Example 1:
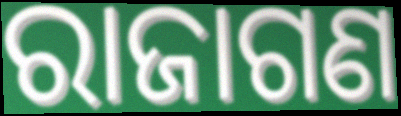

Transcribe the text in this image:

ରାଜାଗଣ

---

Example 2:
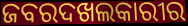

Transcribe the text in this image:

ଜବରଦଖଲକାରୀର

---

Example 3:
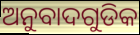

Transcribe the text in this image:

ଅନୁବାଦଗୁଡିକ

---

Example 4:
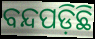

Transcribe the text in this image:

ବନ୍ଦପଡ଼ିଛି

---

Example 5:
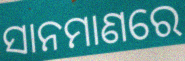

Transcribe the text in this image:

ସାନମାଣରେ